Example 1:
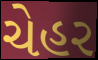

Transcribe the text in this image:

ચેહર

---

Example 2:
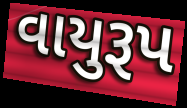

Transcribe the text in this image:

વાયુરૂપ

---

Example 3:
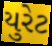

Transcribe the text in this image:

યુરેટ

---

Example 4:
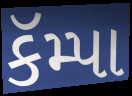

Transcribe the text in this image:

કૅમ્પા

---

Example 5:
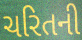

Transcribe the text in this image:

ચરિતની